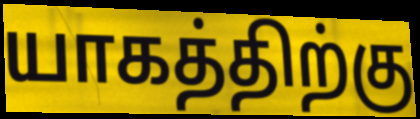
யாகத்திற்கு